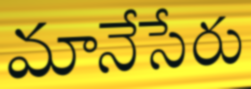
మానేసేరు